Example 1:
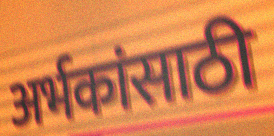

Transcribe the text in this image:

अर्भकांसाठी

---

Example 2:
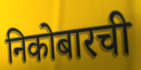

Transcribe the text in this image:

निकोबारची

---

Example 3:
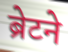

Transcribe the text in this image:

ब्रेटने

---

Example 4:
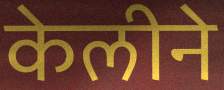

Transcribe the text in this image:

केलीने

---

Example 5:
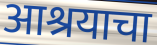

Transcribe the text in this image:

आश्रयाचा